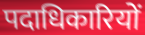
पदाधिकारियों